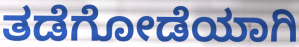
ತಡೆಗೋಡೆಯಾಗಿ